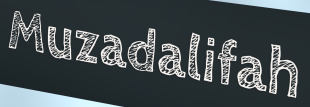
Muzadalifah